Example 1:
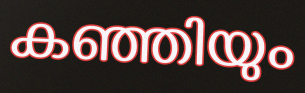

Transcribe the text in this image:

കഞ്ഞിയും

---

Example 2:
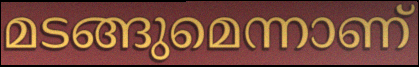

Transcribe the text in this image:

മടങ്ങുമെന്നാണ്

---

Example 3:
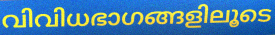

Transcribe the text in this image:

വിവിധഭാഗങ്ങളിലൂടെ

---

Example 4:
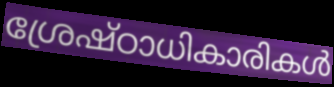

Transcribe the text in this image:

ശ്രേഷ്ഠാധികാരികൾ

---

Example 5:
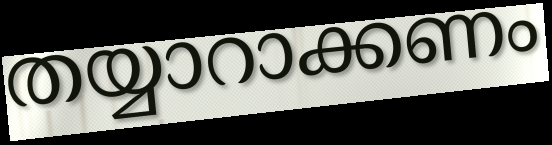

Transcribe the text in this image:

തയ്യാറാക്കണം